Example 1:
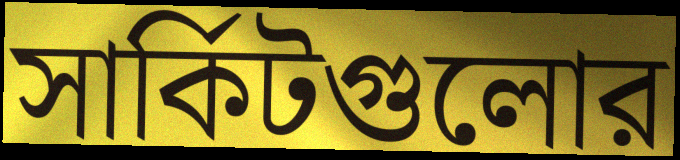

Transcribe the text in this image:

সার্কিটগুলোর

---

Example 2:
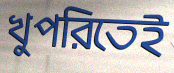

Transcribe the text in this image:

খুপরিতেই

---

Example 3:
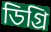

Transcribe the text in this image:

ডিগ্রি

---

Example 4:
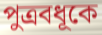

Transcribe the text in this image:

পুত্রবধূকে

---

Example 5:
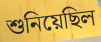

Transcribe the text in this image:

শুনিয়েছিল